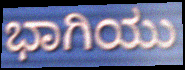
ಭಾಗಿಯು